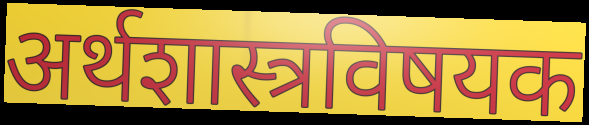
अर्थशास्त्रविषयक